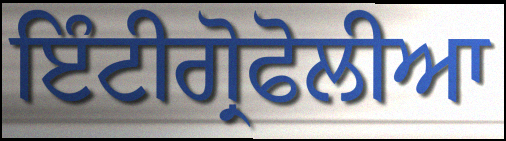
ਇੰਟੀਗ੍ਰੋਫੋਲੀਆ